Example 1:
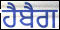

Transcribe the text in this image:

ਹੈਬੈਗ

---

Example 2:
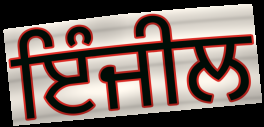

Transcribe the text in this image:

ਇੰਜੀਲ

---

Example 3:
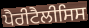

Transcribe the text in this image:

ਪੈਰੀਟੈਲੀਸਿਸ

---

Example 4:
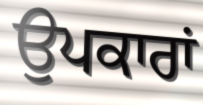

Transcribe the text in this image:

ਉਪਕਾਰਾਂ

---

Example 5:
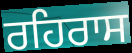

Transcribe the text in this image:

ਰਹਿਰਾਸ